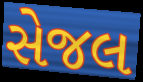
સેજલ